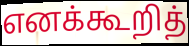
எனக்கூறித்